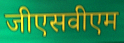
जीएसवीएम